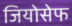
जियोसेफ